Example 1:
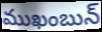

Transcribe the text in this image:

ముఖంబున్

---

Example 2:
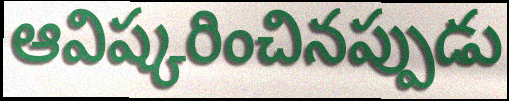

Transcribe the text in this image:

ఆవిష్కరించినప్పుడు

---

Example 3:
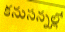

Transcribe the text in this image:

కనుసన్నల్లో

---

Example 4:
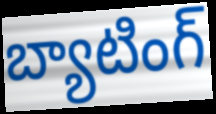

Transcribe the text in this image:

బ్యాటింగ్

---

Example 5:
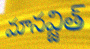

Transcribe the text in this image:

మానవ్జిత్